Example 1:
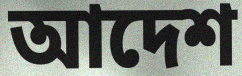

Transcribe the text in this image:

আদেশ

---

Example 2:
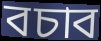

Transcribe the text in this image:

বচাব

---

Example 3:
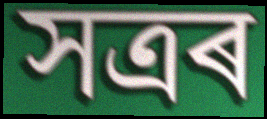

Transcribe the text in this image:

সত্ৰৰ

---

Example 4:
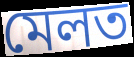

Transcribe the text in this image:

মেলত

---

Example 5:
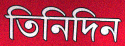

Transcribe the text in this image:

তিনিদিন